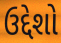
ઉદ્દેશો